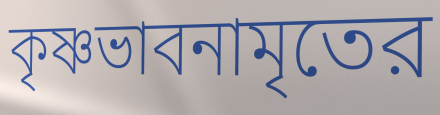
কৃষ্ণভাবনামৃতের